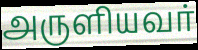
அருளியவர்